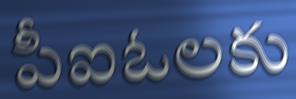
పీఐఓలకు